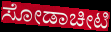
ಸೋಡಾಚೀಟಿ